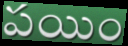
పయిం